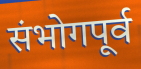
संभोगपूर्व